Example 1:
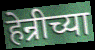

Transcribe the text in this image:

हेन्रीच्या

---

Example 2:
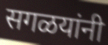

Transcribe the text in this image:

सगळयांनी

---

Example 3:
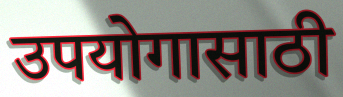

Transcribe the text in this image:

उपयोगासाठी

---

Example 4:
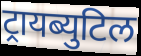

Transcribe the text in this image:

ट्रायब्युटिल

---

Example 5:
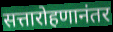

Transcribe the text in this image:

सत्तारोहणानंतर